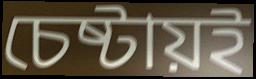
চেষ্টায়ই